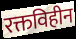
रक्तविहीन